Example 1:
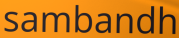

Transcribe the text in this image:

sambandh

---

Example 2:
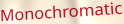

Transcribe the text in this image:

Monochromatic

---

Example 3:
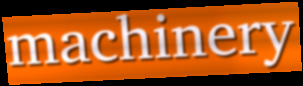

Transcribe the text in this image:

machinery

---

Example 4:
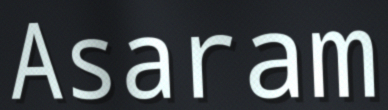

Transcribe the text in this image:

Asaram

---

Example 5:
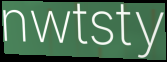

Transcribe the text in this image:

nwtsty